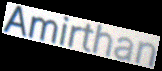
Amirthan